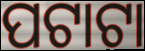
ପଟାଟା